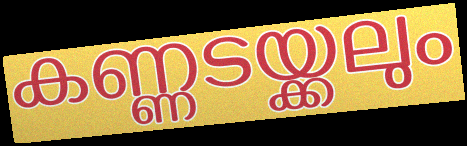
കണ്ണടയ്ക്കലും